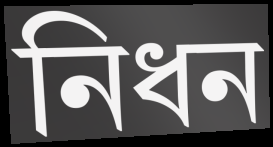
নিধন